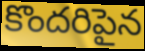
కొందరిపైన